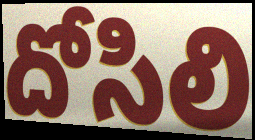
దోసిలి